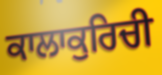
ਕਾਲਾਕੁਰਿਚੀ